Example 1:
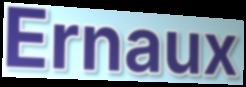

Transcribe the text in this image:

Ernaux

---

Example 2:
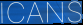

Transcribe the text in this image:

ICANS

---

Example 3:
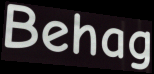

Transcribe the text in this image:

Behag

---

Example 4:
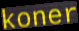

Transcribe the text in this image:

koner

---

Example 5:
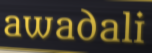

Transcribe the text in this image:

awadali